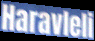
Haravleli